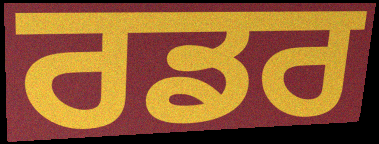
ਰਡਰ